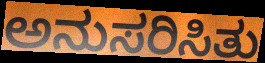
ಅನುಸರಿಸಿತು